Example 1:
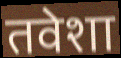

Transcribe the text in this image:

तवेशा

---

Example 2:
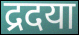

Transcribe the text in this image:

द्रदया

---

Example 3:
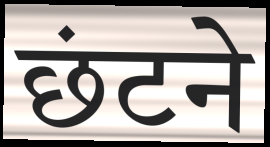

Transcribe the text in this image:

छंटने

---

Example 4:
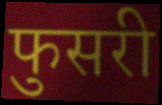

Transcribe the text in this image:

फुसरी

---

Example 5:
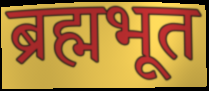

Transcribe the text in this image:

ब्रह्मभूत